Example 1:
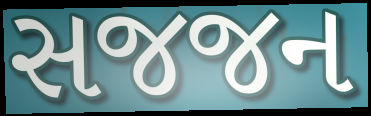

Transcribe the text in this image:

સજજન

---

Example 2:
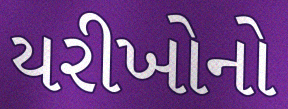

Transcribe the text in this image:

યરીખોનો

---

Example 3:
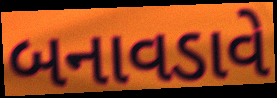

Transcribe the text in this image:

બનાવડાવે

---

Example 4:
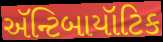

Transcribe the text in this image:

ઍન્ટિબાયૉટિક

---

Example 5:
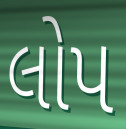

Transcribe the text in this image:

લોપ